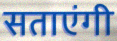
सताएंगी